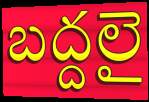
బద్దలై